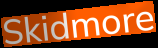
Skidmore